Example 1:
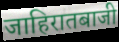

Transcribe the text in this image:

जाहिरातबाजी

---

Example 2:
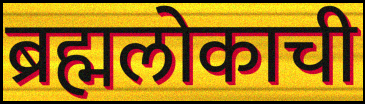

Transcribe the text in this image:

ब्रह्मलोकाची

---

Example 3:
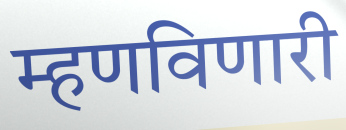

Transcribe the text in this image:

म्हणविणारी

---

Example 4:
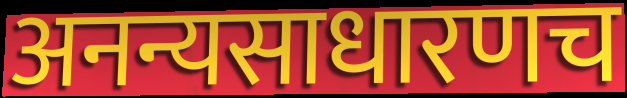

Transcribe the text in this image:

अनन्यसाधारणच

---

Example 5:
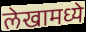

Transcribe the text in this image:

लेखामध्ये